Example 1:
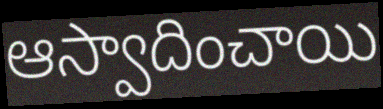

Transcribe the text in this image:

ఆస్వాదించాయి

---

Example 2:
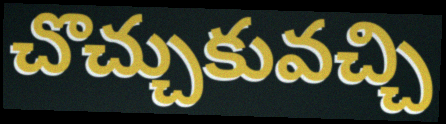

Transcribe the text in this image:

చొచ్చుకువచ్చి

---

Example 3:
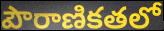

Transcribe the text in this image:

పౌరాణికతలో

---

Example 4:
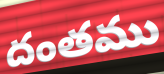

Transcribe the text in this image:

దంతము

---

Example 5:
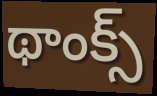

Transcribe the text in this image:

థాంక్స్